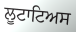
ਲੂਟਾਟਿਅਸ